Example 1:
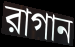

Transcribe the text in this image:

রাগান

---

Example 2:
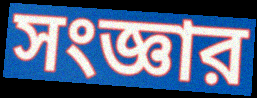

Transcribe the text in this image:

সংজ্ঞার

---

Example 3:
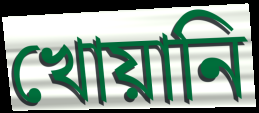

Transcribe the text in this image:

খোয়ানি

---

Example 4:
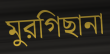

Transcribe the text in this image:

মুরগিছানা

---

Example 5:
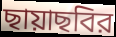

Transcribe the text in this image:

ছায়াছবির